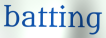
batting